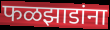
फळझाडांना